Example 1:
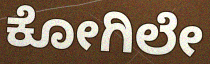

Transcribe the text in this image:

ಕೋಗಿಲೇ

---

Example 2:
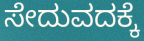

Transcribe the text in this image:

ಸೇದುವದಕ್ಕೆ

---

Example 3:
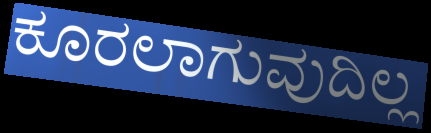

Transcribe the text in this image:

ಕೂರಲಾಗುವುದಿಲ್ಲ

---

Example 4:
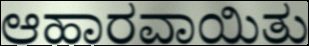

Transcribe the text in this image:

ಆಹಾರವಾಯಿತು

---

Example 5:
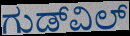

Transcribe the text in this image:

ಗುಡ್‌ವಿಲ್